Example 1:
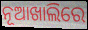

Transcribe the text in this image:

ନୂଆଖାଲିରେ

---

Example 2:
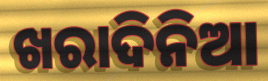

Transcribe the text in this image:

ଖରାଦିନିଆ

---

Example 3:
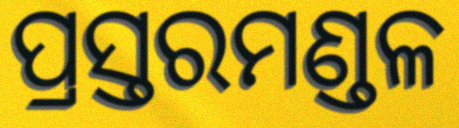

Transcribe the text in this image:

ପ୍ରସ୍ତରମଣ୍ଡଳ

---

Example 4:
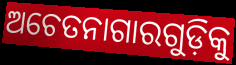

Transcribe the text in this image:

ଅଚେତନାଗାରଗୁଡ଼ିକୁ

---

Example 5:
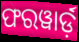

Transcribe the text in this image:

ଫରୱାର୍ଡ଼